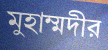
মুহাম্মদীর